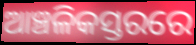
ଆଞ୍ଚଳିକସ୍ତରରେ